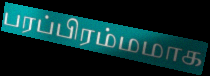
பரப்பிரம்மமாக